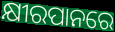
କ୍ଷୀରପାନରେ